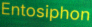
Entosiphon